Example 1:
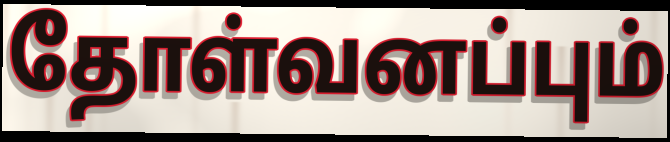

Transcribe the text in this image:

தோள்வனப்பும்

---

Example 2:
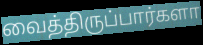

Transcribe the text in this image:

வைத்திருப்பார்களா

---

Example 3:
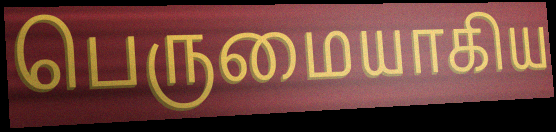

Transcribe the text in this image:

பெருமையாகிய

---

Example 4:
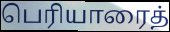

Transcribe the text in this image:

பெரியாரைத்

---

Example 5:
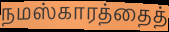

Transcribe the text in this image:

நமஸ்காரத்தைத்